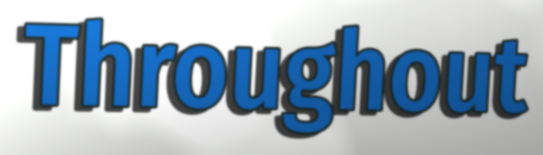
Throughout